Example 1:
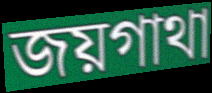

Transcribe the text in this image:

জয়গাথা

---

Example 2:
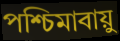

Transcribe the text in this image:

পশ্চিমাবায়ু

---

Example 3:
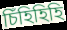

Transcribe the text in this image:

চিঁহিহিহি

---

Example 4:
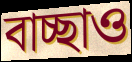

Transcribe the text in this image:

বাচ্ছাও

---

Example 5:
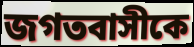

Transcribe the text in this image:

জগতবাসীকে